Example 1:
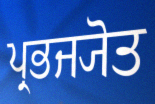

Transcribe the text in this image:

ਪ੍ਰਭਜ੍ਯੋਤ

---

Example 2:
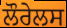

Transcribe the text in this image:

ਲੌਰੇਲਸ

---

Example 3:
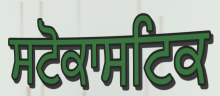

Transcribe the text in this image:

ਸਟੋਕਾਸਟਿਕ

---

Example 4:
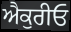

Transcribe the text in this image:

ਐਕੁਰੀਓ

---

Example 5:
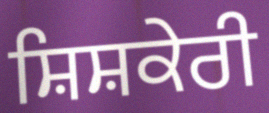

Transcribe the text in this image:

ਸ਼ਿਸ਼ਕੇਰੀ